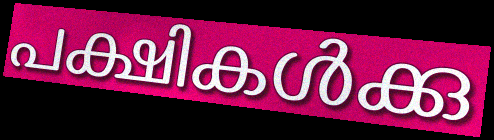
പക്ഷികൾക്കു